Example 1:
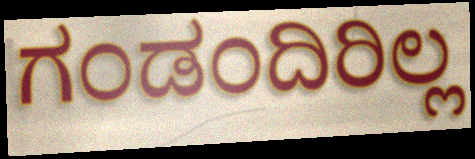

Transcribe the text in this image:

ಗಂಡಂದಿರಿಲ್ಲ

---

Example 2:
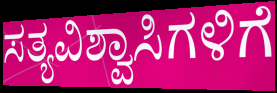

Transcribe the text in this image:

ಸತ್ಯವಿಶ್ವಾಸಿಗಳಿಗೆ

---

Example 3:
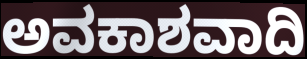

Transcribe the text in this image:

ಅವಕಾಶವಾದಿ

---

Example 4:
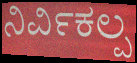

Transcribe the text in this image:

ನಿರ್ವಿಕಲ್ಪ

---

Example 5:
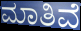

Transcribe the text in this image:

ಮಾತಿವೆ